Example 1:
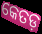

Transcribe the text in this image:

କେତଡ଼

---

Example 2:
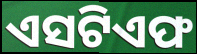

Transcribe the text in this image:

ଏସଟିଏଫ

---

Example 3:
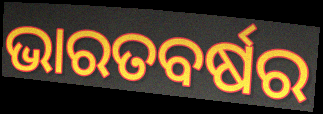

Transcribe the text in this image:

ଭାରତବର୍ଷର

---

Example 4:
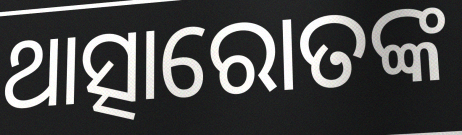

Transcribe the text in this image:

ଥାତ୍ସାରୋତଙ୍କ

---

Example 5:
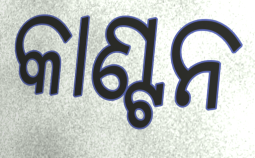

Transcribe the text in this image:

କାଣ୍ଟନ